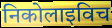
निकोलाइविच